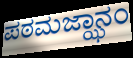
ಪಠಮಜ್ಝಾನಂ